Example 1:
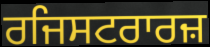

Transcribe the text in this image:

ਰਜਿਸਟਰਾਰਜ਼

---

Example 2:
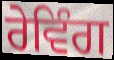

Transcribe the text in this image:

ਰੇਵਿੰਗ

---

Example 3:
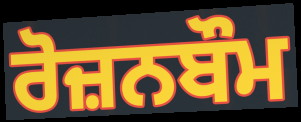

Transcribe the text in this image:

ਰੋਜ਼ਨਬੌਮ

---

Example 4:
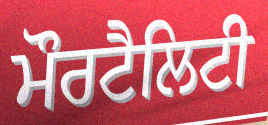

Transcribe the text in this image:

ਮੌਰਟੈਲਿਟੀ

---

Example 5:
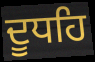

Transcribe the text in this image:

ਦੂਧਹਿ